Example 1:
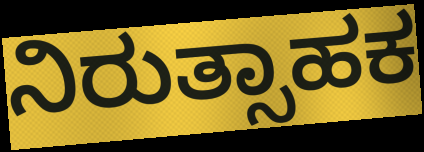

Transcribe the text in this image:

ನಿರುತ್ಸಾಹಕ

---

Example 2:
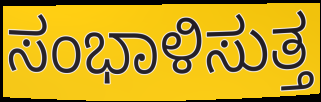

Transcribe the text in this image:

ಸಂಭಾಳಿಸುತ್ತ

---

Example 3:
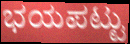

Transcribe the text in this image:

ಭಯಪಟ್ಟು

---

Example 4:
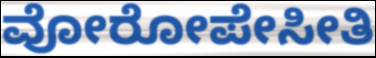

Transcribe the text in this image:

ವೋರೋಪೇಸೀತಿ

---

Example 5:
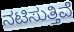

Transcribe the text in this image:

ನಟಿಸುತ್ತಿವೆ